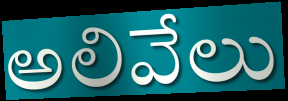
అలివేలు